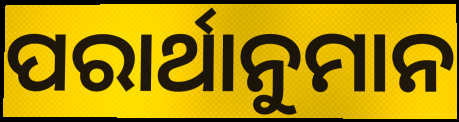
ପରାର୍ଥାନୁମାନ